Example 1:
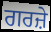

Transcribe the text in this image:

ਗਰਜ਼ੇ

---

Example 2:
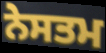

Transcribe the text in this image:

ਨੇਸਤਮ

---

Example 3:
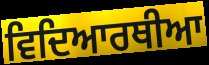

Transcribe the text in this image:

ਵਿਦਿਆਰਥੀਆ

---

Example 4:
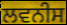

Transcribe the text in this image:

ਲਵਨੀਸ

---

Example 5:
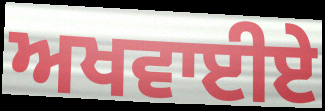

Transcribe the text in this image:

ਅਖਵਾਈਏ